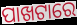
ପାଖଟାରେ